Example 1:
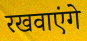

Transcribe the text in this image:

रखवाएंगे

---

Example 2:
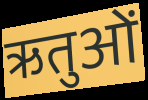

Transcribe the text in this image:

ऋतुओं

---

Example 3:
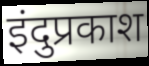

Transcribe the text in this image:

इंदुप्रकाश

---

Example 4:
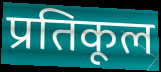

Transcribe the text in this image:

प्रतिकूल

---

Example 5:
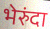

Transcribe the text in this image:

भेरुंदा